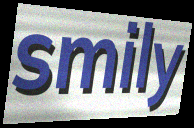
smily